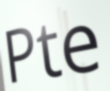
Pte